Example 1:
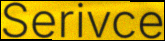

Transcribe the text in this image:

Serivce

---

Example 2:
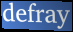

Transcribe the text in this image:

defray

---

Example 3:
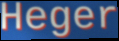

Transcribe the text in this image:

Heger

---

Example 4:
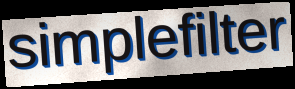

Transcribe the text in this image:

simplefilter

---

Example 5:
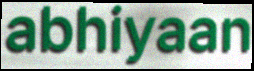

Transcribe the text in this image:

abhiyaan